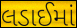
લડાઈમાં